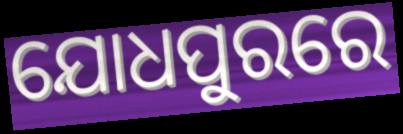
ଯୋଧପୁରରେ